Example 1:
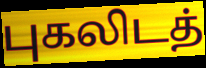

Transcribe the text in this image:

புகலிடத்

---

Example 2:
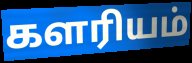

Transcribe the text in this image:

களரியம்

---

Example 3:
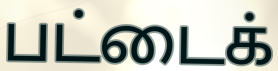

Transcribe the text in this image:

பட்டைக்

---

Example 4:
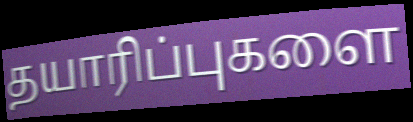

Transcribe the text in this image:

தயாரிப்புகளை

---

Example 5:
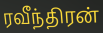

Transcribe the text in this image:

ரவீந்திரன்